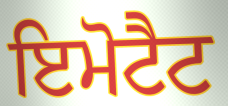
ਇਮੋਟੈਟ